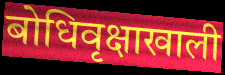
बोधिवृक्षाखाली